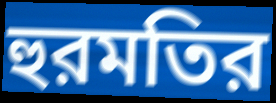
হুরমতির